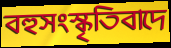
বহুসংস্কৃতিবাদে